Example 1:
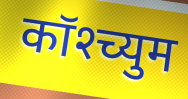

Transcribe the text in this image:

कॉश्च्युम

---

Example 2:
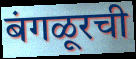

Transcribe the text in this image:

बंगळूरची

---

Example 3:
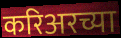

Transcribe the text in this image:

करिअरच्या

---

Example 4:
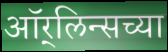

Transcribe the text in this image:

ऑर्लिन्सच्या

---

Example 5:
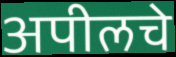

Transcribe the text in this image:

अपीलचे